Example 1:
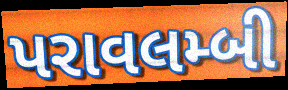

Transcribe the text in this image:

પરાવલમ્બી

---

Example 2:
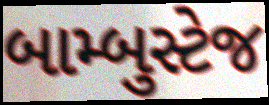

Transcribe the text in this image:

બામ્બુસ્ટેજ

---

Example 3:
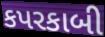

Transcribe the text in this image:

કપરકાબી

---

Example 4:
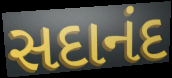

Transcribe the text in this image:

સદાનંદ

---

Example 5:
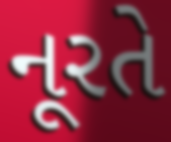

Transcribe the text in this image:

નૂરતે